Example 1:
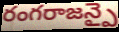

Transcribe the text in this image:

రంగరాజన్పై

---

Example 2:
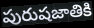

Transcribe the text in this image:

పురుషజాతికి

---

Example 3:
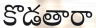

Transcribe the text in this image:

కొడతారా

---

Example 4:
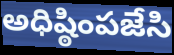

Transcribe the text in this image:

అధిష్ఠింపజేసి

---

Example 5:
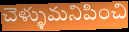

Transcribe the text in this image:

చెళ్ళుమనిపించి